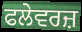
ਫਲੇਵਰਜ਼